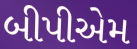
બીપીએમ